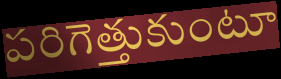
పరిగెత్తుకుంటూ